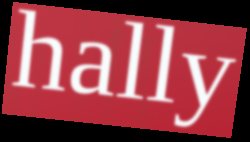
hally